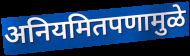
अनियमितपणामुळे